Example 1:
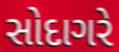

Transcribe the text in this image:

સોદાગરે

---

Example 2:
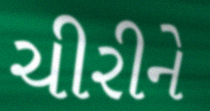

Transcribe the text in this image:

ચીરીને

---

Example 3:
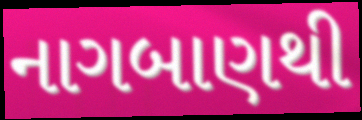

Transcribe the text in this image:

નાગબાણથી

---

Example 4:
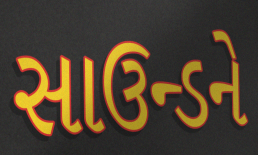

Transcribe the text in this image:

સાઉન્ડને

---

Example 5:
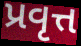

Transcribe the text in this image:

પ્રવૃત્ત